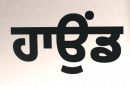
ਹਾਉਂਡ